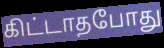
கிட்டாதபோது